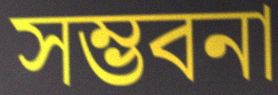
সম্ভবনা